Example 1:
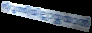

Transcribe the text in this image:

നിവൃത്തിയില്ലായ്കയാൽ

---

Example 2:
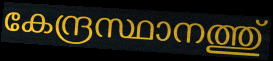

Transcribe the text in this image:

കേന്ദ്രസ്ഥാനത്തു്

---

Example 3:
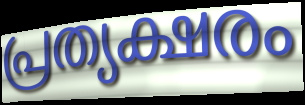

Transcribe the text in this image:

പ്രത്യക്ഷരം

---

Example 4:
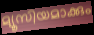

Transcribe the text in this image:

മ്യൂസിയമാക്കും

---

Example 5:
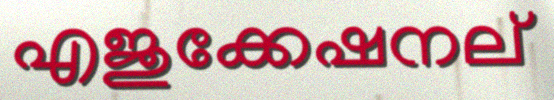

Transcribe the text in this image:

എജുക്കേഷനല്